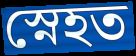
স্নেহত